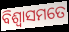
ବିଶ୍ୱାସମତେ